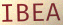
IBEA